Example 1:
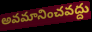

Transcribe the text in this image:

అవమానించవద్దు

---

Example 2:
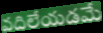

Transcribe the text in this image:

వదిలేయడమే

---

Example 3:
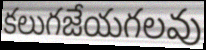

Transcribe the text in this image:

కలుగజేయగలవు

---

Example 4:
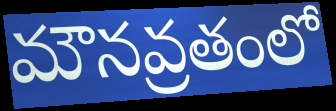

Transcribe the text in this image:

మౌనవ్రతంలో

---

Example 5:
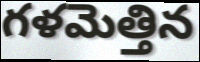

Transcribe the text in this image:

గళమెత్తిన